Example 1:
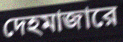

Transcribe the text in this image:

দেহমাজারে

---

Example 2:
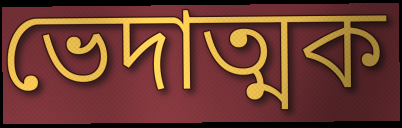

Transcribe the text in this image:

ভেদাত্মক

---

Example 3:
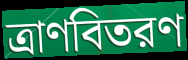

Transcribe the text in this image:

ত্রাণবিতরণ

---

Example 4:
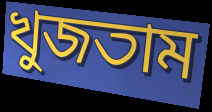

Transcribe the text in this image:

খুজতাম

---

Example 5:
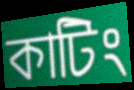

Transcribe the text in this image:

কাটিং